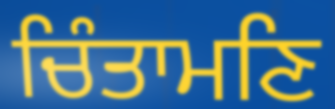
ਚਿੰਤਾਮਣਿ